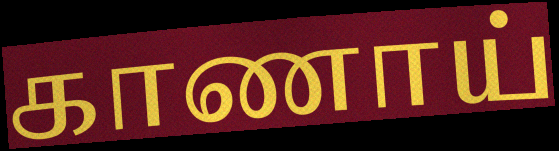
காணாய்